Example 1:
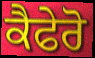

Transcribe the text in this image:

ਕੈਫੇਰੋ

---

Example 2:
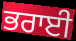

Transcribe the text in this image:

ਭਰਾਈ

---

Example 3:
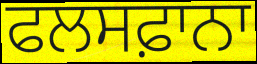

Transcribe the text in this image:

ਫਲਸਫ਼ਾਨਾ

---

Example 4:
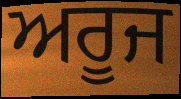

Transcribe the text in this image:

ਅਰੂਜ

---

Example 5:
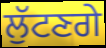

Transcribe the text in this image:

ਲੁੱਟਣਗੇ